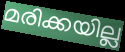
മരിക്കയില്ല